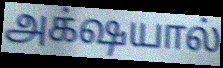
அக்‌ஷயால்